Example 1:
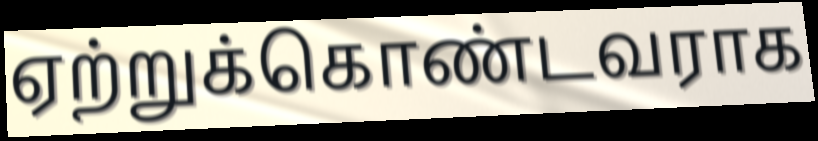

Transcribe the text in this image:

ஏற்றுக்கொண்டவராக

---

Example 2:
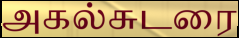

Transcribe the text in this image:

அகல்சுடரை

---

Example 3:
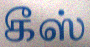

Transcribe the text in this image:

கீஸ்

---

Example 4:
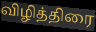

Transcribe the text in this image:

விழித்திரை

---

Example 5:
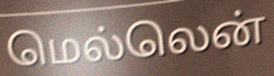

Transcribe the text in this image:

மெல்லென்